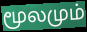
மூலமும்